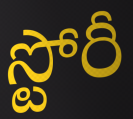
స్టోరీ